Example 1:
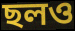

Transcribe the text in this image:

ছলও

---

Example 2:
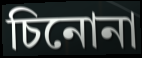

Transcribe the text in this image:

চিনোনা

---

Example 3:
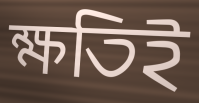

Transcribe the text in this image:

ক্ষতিই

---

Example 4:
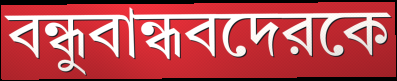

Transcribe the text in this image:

বন্ধুবান্ধবদেরকে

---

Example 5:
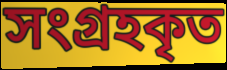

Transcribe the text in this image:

সংগ্রহকৃত